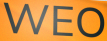
WEO